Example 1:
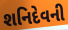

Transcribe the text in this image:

શનિદેવની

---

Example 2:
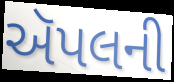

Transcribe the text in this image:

ઍપલની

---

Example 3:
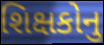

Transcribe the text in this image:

શિક્ષકોનુ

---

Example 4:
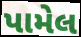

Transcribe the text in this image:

પામેલ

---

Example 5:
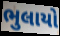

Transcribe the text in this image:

ભુલાયો